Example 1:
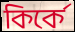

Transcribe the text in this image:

কির্কে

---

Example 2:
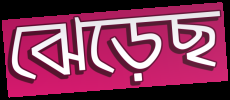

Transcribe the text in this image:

ঝেড়েছ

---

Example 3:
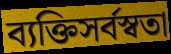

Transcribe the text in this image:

ব্যক্তিসর্বস্বতা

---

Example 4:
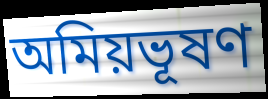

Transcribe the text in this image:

অমিয়ভূষণ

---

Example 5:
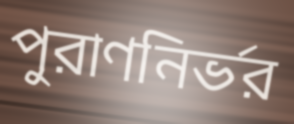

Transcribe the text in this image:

পুরাণনির্ভর